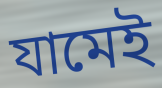
যামেই